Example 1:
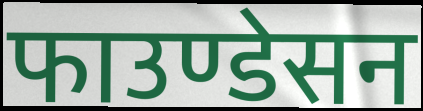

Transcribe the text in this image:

फाउण्डेसन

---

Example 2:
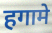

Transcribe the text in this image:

हगामे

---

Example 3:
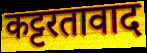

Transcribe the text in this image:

कट्टरतावाद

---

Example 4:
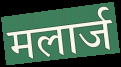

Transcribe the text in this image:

मलार्ज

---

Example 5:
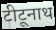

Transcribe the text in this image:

टीटूनाथ